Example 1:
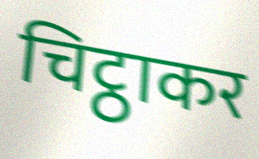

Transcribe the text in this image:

चिट्ठाकर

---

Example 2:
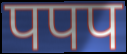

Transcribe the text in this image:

पपप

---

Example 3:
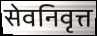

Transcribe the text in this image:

सेवनिवृत्त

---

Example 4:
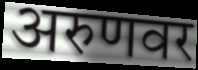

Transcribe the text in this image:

अरुणवर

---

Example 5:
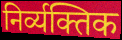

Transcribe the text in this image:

निर्व्यक्तिक